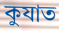
কুযাত